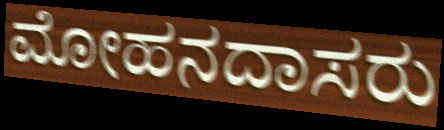
ಮೋಹನದಾಸರು